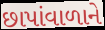
છાપાંવાળાને